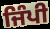
ਜਿੰਪੀ